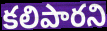
కలిపారని